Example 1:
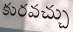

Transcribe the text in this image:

కురవచ్చు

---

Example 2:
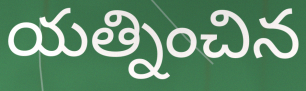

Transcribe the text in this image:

యత్నించిన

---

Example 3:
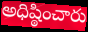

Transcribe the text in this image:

అధిష్ఠించారు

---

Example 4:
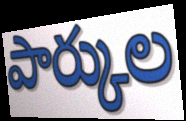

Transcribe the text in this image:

పార్కుల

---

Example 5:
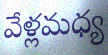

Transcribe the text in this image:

వేళ్లమధ్య